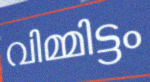
വിമ്മിട്ടം